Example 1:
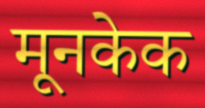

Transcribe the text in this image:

मूनकेक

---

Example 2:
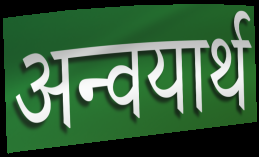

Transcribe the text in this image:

अन्वयार्थ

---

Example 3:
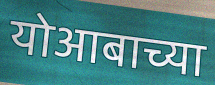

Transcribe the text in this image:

योआबाच्या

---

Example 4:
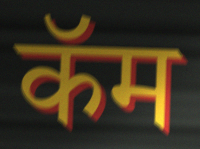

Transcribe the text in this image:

कॅम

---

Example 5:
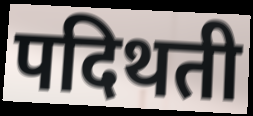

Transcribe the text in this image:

पदिथती